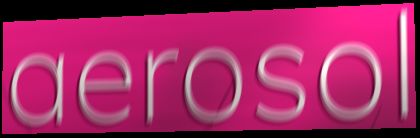
aerosol